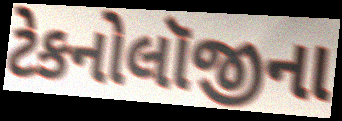
ટેકનોલૉજીના